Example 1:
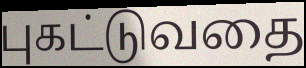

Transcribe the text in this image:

புகட்டுவதை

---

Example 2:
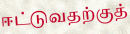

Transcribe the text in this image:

ஈட்டுவதற்குத்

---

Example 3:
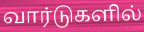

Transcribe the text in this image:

வார்டுகளில்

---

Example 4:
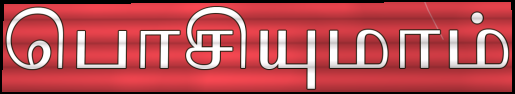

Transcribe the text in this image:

பொசியுமாம்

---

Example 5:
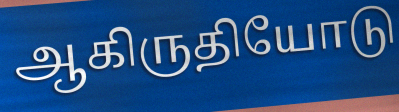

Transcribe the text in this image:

ஆகிருதியோடு